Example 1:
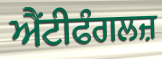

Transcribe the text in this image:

ਐਂਟੀਫੰਗਲਜ਼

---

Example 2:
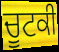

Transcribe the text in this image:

ਚੂਟਕੀ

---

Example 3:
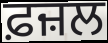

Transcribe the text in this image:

ਫ਼ਜ਼ਲ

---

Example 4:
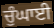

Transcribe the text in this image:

ਚੁੰਘਾਈ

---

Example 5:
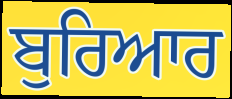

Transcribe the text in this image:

ਬੁਰਿਆਰ